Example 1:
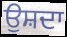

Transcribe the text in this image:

ਉਸ਼ਦਾ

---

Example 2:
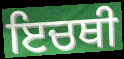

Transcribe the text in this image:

ਇਚਥੀ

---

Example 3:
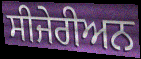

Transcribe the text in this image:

ਸੀਜੇਰੀਅਨ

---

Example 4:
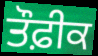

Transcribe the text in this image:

ਤੌਫ਼ੀਕ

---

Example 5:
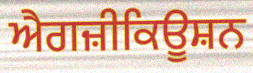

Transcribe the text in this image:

ਐਗਜ਼ੀਕਿਊਸ਼ਨ